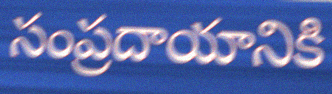
సంప్రదాయానికి